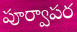
పూర్వాపర